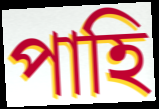
পাহি